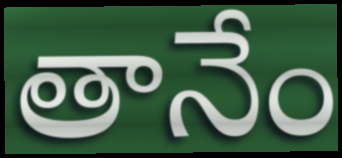
తానేం